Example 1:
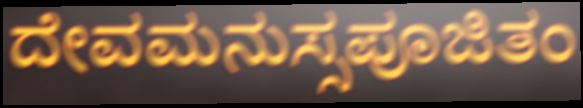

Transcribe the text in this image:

ದೇವಮನುಸ್ಸಪೂಜಿತಂ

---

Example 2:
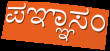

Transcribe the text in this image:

ಪಞ್ಞಾಸಂ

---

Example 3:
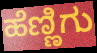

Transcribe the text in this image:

ಹೆಣ್ಣಿಗು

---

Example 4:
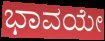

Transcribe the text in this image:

ಭಾವಯೇ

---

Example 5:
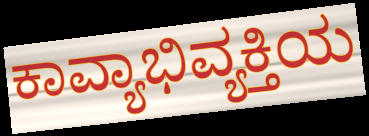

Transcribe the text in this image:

ಕಾವ್ಯಾಭಿವ್ಯಕ್ತಿಯ